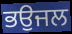
ਭਉਜਲ